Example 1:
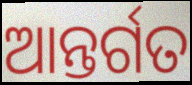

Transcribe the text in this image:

ଆନ୍ତର୍ଗତ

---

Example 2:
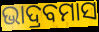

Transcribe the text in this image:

ଭାଦ୍ରବମାସ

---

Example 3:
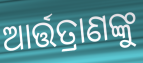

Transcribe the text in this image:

ଆର୍ତ୍ତତ୍ରାଣଙ୍କୁ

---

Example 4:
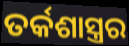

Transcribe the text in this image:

ତର୍କଶାସ୍ତ୍ରର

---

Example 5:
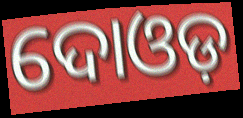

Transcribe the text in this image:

ଦୋଓଡ଼